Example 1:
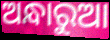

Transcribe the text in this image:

ଅନ୍ଧାରୁଆ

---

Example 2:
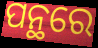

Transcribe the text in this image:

ପନ୍ଥରେ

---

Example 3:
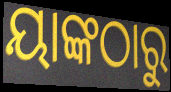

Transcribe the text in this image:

ୟାଙ୍କଠାରୁ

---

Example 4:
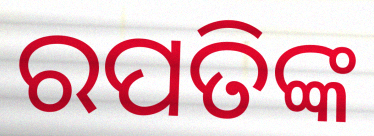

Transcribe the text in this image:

ରପତିଙ୍କ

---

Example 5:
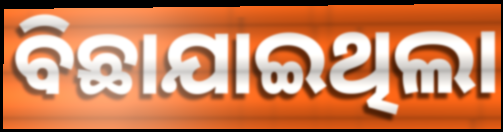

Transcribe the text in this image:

ବିଛାଯାଇଥିଲା